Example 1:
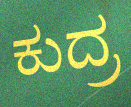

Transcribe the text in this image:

ಕುದ್ರ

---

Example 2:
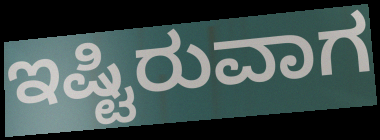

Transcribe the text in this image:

ಇಷ್ಟಿರುವಾಗ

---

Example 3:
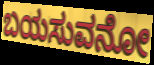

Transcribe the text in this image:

ಬಯಸುವನೋ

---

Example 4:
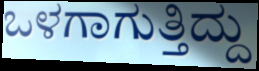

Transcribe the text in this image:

ಒಳಗಾಗುತ್ತಿದ್ದು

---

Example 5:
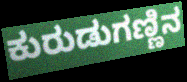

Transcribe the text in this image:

ಕುರುಡುಗಣ್ಣಿನ